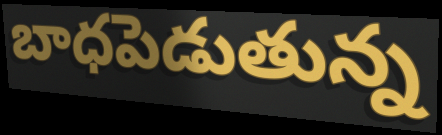
బాధపెడుతున్న